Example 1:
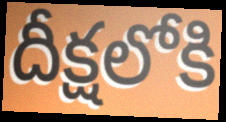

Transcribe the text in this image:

దీక్షలోకి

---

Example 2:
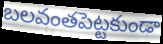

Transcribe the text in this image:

బలవంతపెట్టకుండా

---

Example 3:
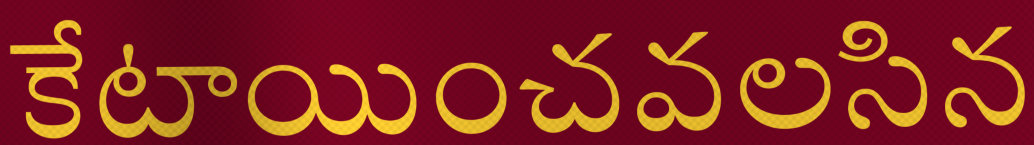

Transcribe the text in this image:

కేటాయించవలసిన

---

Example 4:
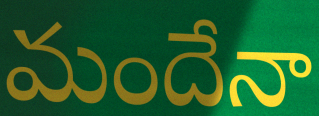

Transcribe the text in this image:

మందేనా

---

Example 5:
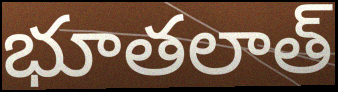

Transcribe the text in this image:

భూతలాత్